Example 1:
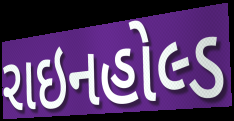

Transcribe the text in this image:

રાઇનહોલ્ડ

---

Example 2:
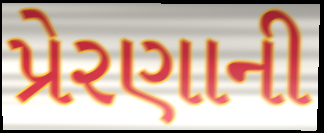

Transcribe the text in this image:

પ્રેરણાની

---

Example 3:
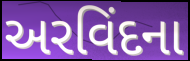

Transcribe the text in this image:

અરવિંદના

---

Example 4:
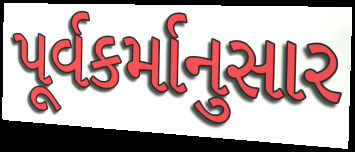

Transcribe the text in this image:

પૂર્વકર્માનુસાર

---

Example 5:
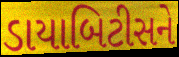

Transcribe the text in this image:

ડાયાબિટીસને